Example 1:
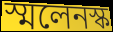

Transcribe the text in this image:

স্মলেনস্ক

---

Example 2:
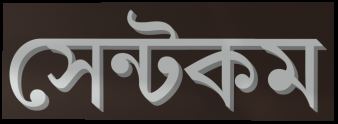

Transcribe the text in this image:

সেন্টকম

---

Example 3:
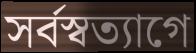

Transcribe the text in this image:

সর্বস্বত্যাগে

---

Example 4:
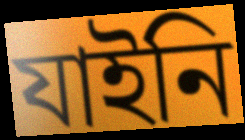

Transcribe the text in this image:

যাইনি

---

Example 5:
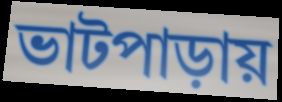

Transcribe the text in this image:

ভাটপাড়ায়